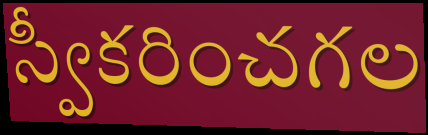
స్వీకరించగల